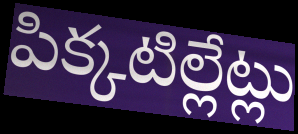
పిక్కటిల్లేట్లు